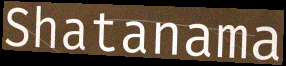
Shatanama